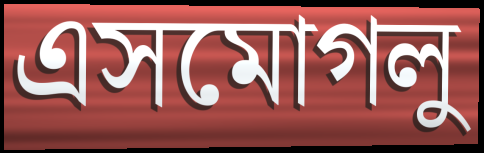
এসমোগলু